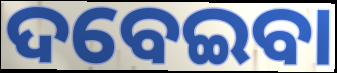
ଦବେଇବା